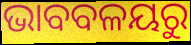
ଭାବବଳୟରୁ